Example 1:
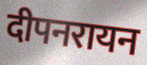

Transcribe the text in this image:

दीपनरायन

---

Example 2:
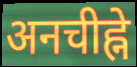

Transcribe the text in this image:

अनचीह्ने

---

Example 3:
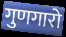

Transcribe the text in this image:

गुणगारो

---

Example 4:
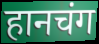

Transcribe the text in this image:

हानचंग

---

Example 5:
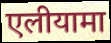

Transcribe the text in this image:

एलीयामा